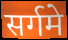
सर्गमे